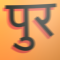
पुर